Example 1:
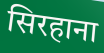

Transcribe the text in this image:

सिरहाना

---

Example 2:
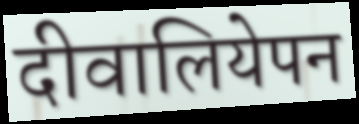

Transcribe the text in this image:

दीवालियेपन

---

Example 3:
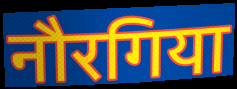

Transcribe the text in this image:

नौरगिया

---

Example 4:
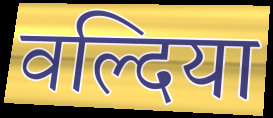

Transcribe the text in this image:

वल्दिया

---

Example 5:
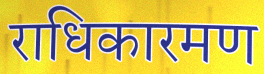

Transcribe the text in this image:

राधिकारमण